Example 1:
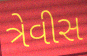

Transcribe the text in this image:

ત્રેવીસ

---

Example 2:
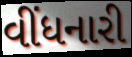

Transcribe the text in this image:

વીંધનારી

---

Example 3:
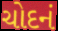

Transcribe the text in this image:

ચોદનં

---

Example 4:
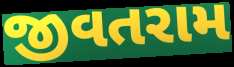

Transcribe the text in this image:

જીવતરામ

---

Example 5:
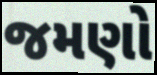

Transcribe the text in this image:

જમણો